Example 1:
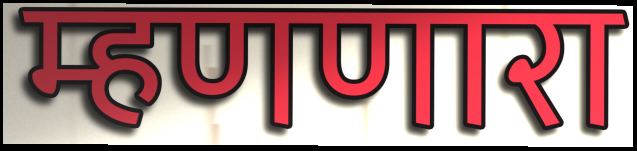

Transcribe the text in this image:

म्हणणारा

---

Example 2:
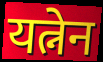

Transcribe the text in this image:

यत्नेन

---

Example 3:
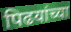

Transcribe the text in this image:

पिढयांच्या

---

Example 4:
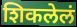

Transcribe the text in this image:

शिकलेलं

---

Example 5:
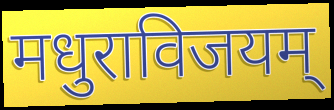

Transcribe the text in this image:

मधुराविजयम्